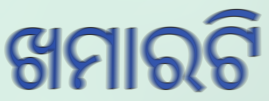
ଖମାରଟି